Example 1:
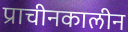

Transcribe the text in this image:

प्राचीनकालीन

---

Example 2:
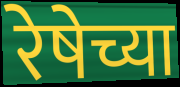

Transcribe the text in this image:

रेषेच्या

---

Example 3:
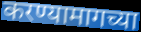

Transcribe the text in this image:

करण्यामागच्या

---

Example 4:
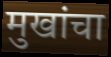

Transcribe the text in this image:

मुखांचा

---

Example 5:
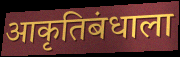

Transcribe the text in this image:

आकृतिबंधाला